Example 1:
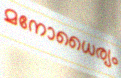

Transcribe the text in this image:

മനോധൈര്യം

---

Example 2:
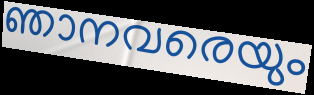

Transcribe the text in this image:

ഞാനവരെയും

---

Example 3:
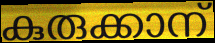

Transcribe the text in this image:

കുരുക്കാന്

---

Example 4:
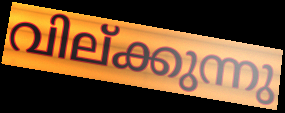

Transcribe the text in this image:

വില്ക്കുന്നു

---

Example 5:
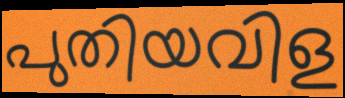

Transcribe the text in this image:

പുതിയവിള